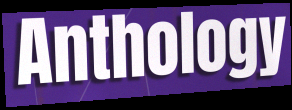
Anthology